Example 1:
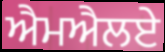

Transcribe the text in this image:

ਐਮਐਲਏ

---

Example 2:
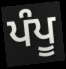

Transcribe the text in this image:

ਪੰਪੂ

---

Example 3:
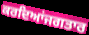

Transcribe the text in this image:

ਕਰਦਿਆਂਜਗਤਾਰ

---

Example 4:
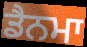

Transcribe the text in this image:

ਡੈਨਮਾ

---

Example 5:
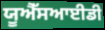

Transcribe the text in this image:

ਯੂਐੱਸਆਈਡੀ